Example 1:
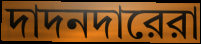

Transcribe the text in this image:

দাদনদারেরা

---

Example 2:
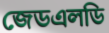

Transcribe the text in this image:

জেডএলডি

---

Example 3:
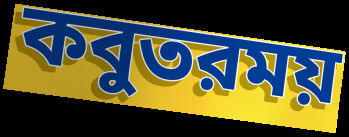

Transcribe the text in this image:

কবুতরময়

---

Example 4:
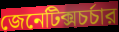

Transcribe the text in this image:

জেনেটিক্সচর্চার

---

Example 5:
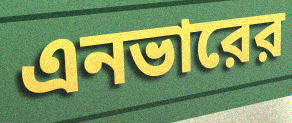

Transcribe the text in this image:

এনভারের